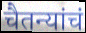
चैतन्यांचं